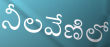
నీలవేణిలో